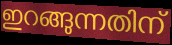
ഇറങ്ങുന്നതിന്